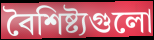
বৈশিষ্ট্যগুলো